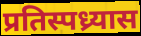
प्रतिस्पध्र्यास